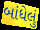
બાંધેલું